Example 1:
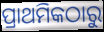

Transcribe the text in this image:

ପ୍ରାଥମିକଠାରୁ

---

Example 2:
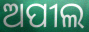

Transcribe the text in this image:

ଅପୀଲ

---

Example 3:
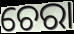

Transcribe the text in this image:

ଚେରା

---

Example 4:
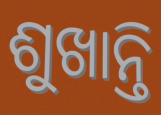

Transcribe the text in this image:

ଶୁଖାନ୍ତି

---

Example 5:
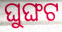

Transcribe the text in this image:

ଘୁଙ୍ଘଟ